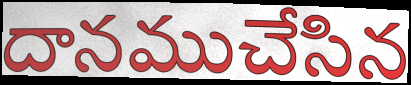
దానముచేసిన